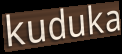
kuduka